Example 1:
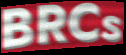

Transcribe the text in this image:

BRCs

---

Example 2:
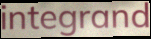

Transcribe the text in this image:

integrand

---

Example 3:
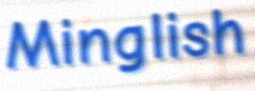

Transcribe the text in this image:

Minglish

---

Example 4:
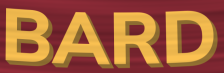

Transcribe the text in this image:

BARD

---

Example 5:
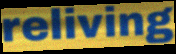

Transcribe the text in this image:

reliving